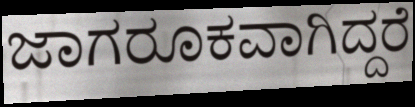
ಜಾಗರೂಕವಾಗಿದ್ದರೆ